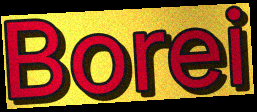
Borei